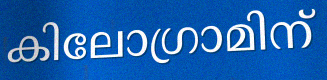
കിലോഗ്രാമിന്